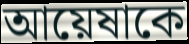
আয়েষাকে